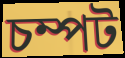
চম্পট